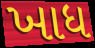
ખાધ